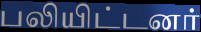
பலியிட்டனர்